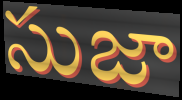
సుజా